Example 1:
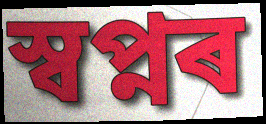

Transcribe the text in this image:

স্বপ্নৰ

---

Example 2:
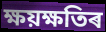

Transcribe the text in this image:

ক্ষয়ক্ষতিৰ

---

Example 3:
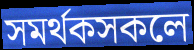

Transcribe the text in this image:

সমৰ্থকসকলে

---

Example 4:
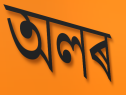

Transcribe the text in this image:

অলৰ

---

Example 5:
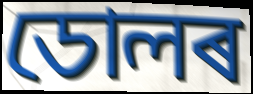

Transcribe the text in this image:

ডোলৰ